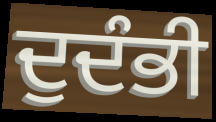
ਦੁਦੰਭੀ